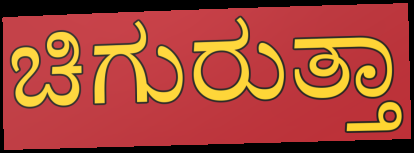
ಚಿಗುರುತ್ತಾ